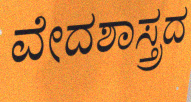
ವೇದಶಾಸ್ತ್ರದ